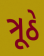
ત્રૂઠે